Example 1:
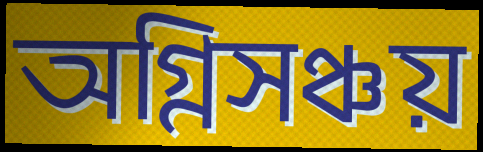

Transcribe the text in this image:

অগ্নিসঞ্চয়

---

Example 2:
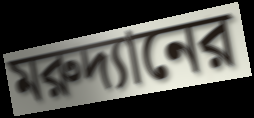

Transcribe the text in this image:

মরুদ্যানের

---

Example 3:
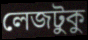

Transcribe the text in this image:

লেজটুকু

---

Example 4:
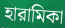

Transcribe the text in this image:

হারামিকা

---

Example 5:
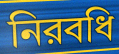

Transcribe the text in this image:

নিরবধি